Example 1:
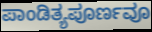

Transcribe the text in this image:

ಪಾಂಡಿತ್ಯಪೂರ್ಣವೂ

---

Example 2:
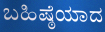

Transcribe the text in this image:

ಬಹಿಷ್ಠೆಯಾದ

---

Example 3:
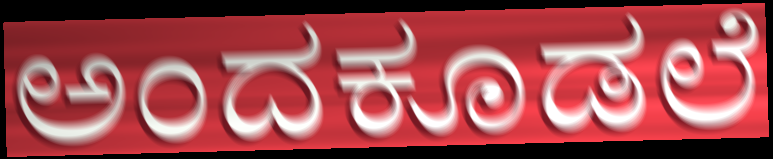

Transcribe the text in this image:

ಅಂದಕೂಡಲೆ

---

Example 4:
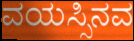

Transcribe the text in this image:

ವಯಸ್ಸಿನವ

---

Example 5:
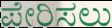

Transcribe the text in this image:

ಪೇರಿಸಲು